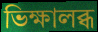
ভিক্ষালব্ধ